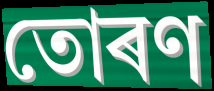
তোৰণ